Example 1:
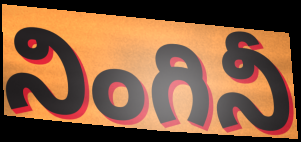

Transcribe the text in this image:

నింగినీ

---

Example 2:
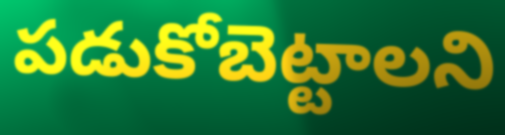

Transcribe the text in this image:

పడుకోబెట్టాలని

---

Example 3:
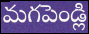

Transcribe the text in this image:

మగపెండ్లి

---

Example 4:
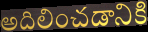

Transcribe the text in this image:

అదిలించడానికి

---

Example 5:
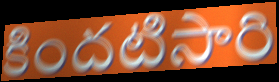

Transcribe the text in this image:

కిందటిసారి